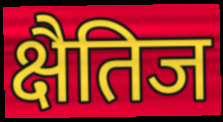
क्षैतिज